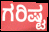
ಗರಿಷ್ಟ